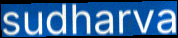
sudharva